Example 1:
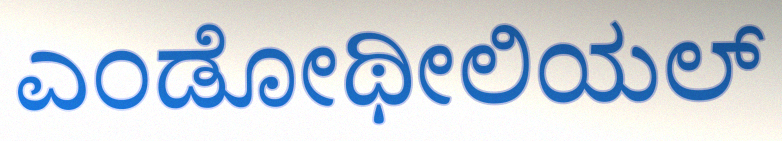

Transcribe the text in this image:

ಎಂಡೋಥೀಲಿಯಲ್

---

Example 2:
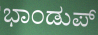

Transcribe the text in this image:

ಭಾಂಡುಪ್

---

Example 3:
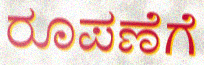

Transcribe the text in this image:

ರೂಪಣೆಗೆ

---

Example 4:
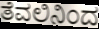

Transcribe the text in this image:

ತೆವಲಿನಿಂದ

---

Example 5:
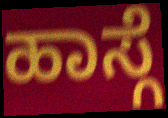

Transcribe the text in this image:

ಹಾಸ್ಗೆ